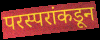
परस्परांकडून